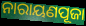
ନାରାୟଣପୂଜା